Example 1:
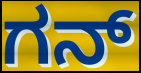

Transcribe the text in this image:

ಗನ್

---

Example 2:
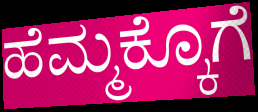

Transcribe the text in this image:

ಹೆಮ್ಮಕ್ಕೊಗೆ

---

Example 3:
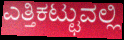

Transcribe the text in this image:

ಎತ್ತಿಕಟ್ಟುವಲ್ಲಿ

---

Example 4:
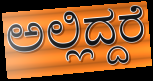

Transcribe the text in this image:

ಅಲ್ಲಿದ್ದರೆ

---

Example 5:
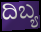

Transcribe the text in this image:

ದಿಬ್ಯ